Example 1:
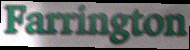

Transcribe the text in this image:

Farrington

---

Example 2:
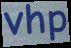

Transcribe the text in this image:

vhp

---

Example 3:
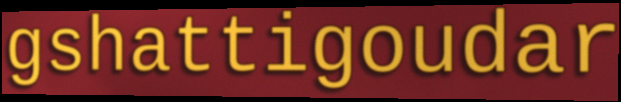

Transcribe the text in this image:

gshattigoudar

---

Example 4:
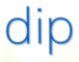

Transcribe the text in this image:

dip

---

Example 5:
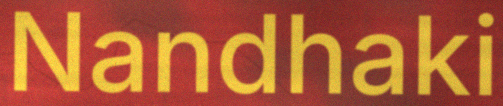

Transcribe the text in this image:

Nandhaki